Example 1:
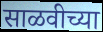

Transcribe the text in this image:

साळवीच्या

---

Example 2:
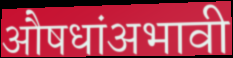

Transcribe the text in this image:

औषधांअभावी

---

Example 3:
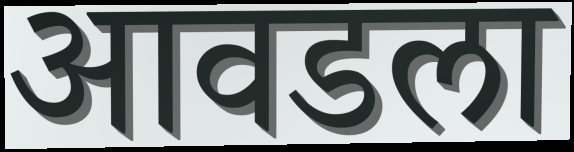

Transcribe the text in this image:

आवडला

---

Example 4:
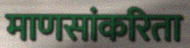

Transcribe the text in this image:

माणसांकरिता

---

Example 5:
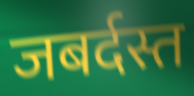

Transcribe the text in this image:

जबर्दस्त